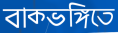
বাক্ভঙ্গিতে